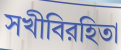
সখীবিরহিতা